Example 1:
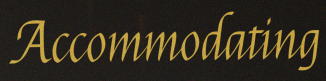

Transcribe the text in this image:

Accommodating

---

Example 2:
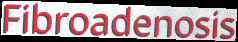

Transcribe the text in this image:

Fibroadenosis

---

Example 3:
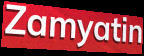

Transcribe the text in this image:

Zamyatin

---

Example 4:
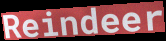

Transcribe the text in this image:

Reindeer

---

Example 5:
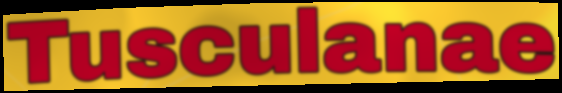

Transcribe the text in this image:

Tusculanae